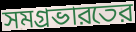
সমগ্রভারতের